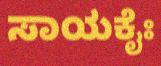
ಸಾಯಕೈಃ